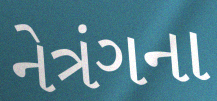
નેત્રંગના